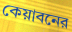
কেয়াবনের